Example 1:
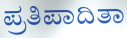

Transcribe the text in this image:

ಪ್ರತಿಪಾದಿತಾ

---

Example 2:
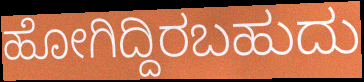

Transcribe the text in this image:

ಹೋಗಿದ್ದಿರಬಹುದು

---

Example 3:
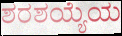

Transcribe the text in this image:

ಶರಶಯ್ಯೆಯ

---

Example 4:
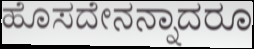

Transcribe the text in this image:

ಹೊಸದೇನನ್ನಾದರೂ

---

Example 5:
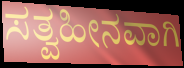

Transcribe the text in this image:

ಸತ್ವಹೀನವಾಗಿ